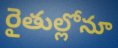
రైతుల్లోనూ